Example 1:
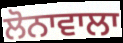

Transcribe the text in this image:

ਲੋਨਾਵਾਲਾ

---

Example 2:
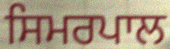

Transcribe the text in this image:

ਸਿਮਰਪਾਲ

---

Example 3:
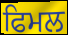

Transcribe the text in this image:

ਫਿਮਲ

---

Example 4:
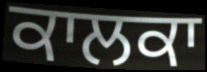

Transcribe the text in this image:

ਕਾਲਕਾ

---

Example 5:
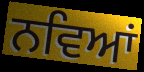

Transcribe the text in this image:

ਨਵਿਆਂ